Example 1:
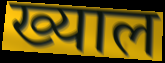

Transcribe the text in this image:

ख्याल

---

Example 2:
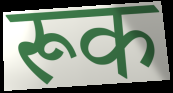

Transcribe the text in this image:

रूक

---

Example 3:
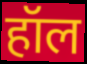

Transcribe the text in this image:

हॉल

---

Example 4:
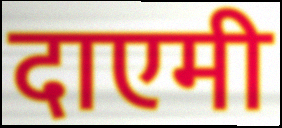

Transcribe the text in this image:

दाएमी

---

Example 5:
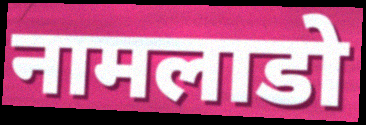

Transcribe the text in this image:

नामलाडो